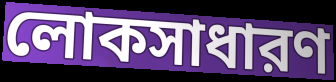
লোকসাধারণ